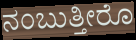
ನಂಬುತ್ತೀರೊ